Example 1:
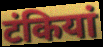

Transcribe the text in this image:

टंकियां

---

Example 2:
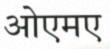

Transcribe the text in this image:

ओएमए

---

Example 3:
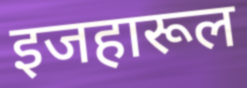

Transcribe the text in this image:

इजहारूल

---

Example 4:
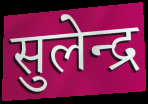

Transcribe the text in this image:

सुलेन्द्र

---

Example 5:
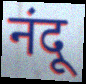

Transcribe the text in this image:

नंदू